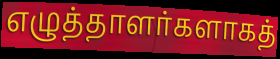
எழுத்தாளர்களாகத்